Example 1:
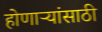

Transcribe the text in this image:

होणाऱ्यांसाठी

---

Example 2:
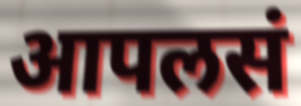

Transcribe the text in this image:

आपलसं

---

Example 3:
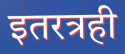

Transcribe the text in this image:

इतरत्रही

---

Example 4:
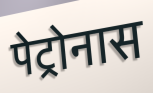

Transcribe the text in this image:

पेट्रोनास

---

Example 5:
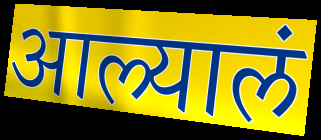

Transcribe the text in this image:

आल्यालं